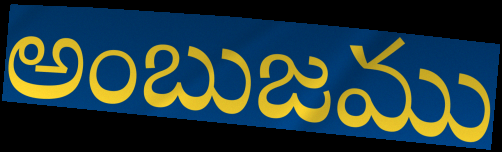
అంబుజము